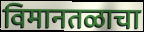
विमानतळाचा